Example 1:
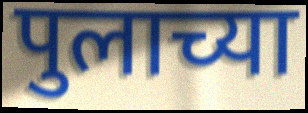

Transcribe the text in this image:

पुलाच्या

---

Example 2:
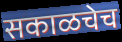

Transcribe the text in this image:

सकाळचेच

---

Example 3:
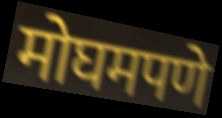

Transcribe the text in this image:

मोघमपणे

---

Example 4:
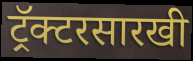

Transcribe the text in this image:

ट्रॅक्टरसारखी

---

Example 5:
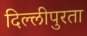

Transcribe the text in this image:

दिल्लीपुरता